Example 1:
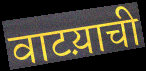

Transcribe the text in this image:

वाटय़ाची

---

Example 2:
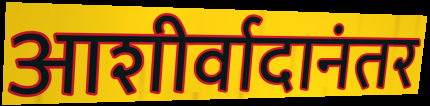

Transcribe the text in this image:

आशीर्वादानंतर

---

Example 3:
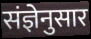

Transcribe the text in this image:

संज्ञेनुसार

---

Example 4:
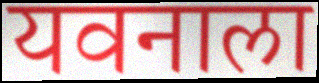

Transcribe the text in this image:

यवनाला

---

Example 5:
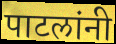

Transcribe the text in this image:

पाटलांनी